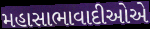
મહાસાભાવાદીઓએ